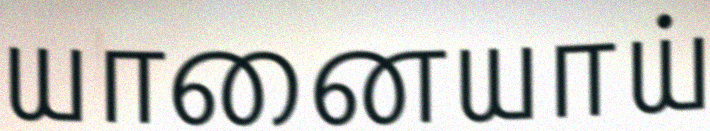
யானையாய்